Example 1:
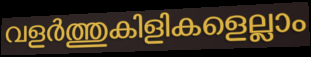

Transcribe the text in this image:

വളർത്തുകിളികളെല്ലാം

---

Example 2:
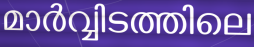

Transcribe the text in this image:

മാർവ്വിടത്തിലെ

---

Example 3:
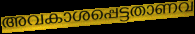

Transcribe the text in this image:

അവകാശപ്പെട്ടതാണവ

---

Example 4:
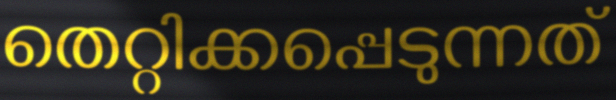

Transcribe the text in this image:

തെറ്റിക്കപ്പെടുന്നത്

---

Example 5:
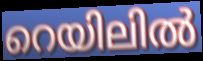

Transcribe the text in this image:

റെയിലിൽ